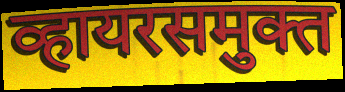
व्हायरसमुक्त